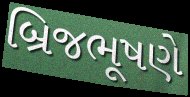
બ્રિજભૂષણે